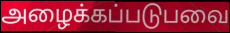
அழைக்கப்படுபவை